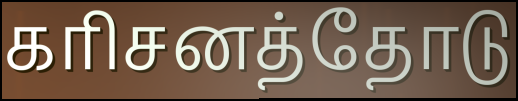
கரிசனத்தோடு